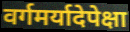
वर्गमर्यादेपेक्षा